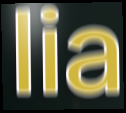
lia